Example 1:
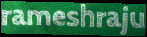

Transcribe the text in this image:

rameshraju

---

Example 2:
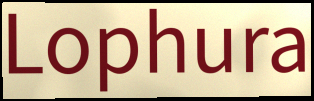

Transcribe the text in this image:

Lophura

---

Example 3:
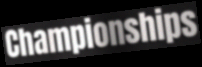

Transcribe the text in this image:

Championships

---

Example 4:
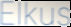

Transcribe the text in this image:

Elkus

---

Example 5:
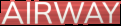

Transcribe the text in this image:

AIRWAY